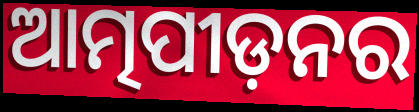
ଆତ୍ମପୀଡ଼ନର